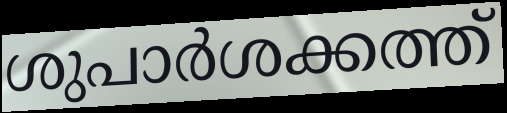
ശുപാർശക്കത്ത്